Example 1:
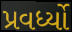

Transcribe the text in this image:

પ્રવર્ધ્યો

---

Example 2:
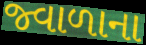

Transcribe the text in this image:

જ્વાળાના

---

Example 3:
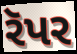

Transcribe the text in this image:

રૅપર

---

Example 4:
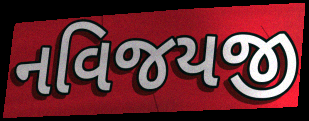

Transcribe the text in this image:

નવિજયજી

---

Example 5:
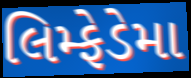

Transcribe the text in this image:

લિમ્ફેડેમા